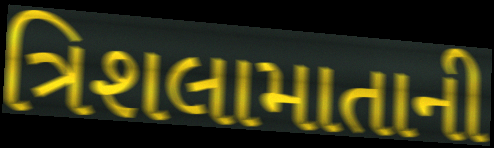
ત્રિશલામાતાની